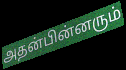
அதன்பின்னரும்